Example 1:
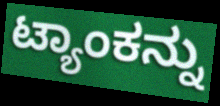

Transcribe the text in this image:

ಟ್ಯಾಂಕನ್ನು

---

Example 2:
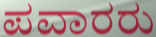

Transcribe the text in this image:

ಪವಾರರು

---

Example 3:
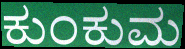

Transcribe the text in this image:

ಕುಂಕುಮ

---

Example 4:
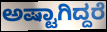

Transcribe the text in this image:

ಅಷ್ಟಾಗಿದ್ದರೆ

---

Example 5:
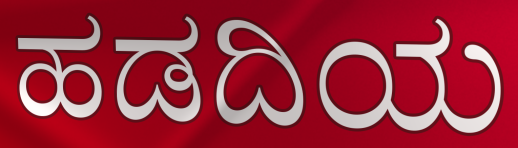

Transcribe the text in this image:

ಹಡದಿಯ